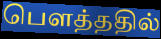
பௌத்ததில்